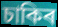
চাকিৰ